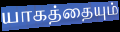
யாகத்தையும்